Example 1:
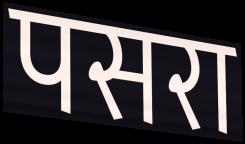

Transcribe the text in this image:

पसरा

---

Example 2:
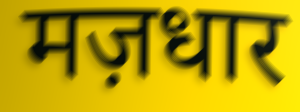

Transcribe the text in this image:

मज़धार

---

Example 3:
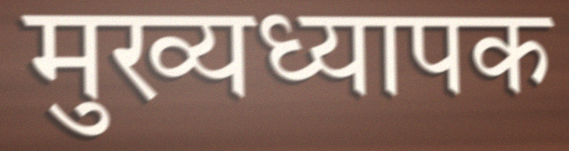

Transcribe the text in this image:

मुख्यध्यापक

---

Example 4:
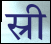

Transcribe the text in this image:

स्री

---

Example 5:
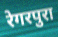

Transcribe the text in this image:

रेगरपुरा